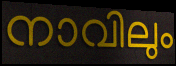
നാവിലും